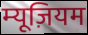
म्यूज़ियम